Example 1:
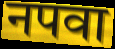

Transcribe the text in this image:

नपवा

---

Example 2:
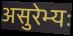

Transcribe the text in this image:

असुरेभ्यः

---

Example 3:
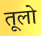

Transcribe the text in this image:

तूलो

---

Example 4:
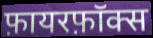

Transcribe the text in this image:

फ़ायरफ़ॉक्स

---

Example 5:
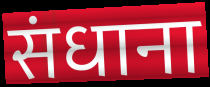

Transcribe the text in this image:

संधाना